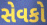
સેવકો